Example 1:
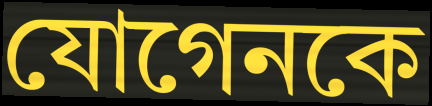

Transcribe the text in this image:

যোগেনকে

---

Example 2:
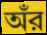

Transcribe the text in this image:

অঁর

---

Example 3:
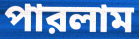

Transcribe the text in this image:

পারলাম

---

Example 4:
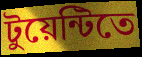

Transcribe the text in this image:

টুয়েন্টিতে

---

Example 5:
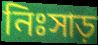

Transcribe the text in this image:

নিঃসাড়